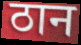
ठान